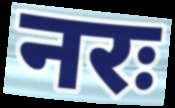
नरः